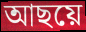
আছয়ে